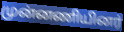
முன்னணியினர்